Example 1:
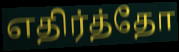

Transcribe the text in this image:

எதிர்த்தோ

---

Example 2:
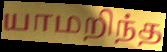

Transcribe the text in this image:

யாமறிந்த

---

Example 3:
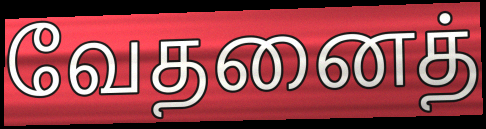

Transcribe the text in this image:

வேதனைத்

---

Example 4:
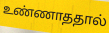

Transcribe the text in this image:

உண்ணாததால்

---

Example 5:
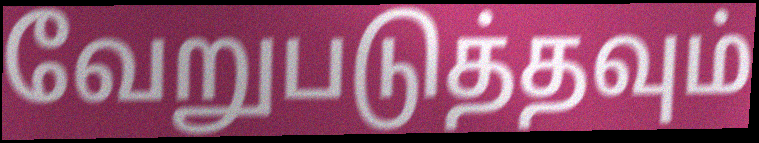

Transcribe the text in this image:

வேறுபடுத்தவும்